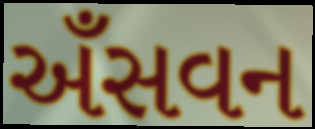
અઁસવન